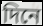
দিনে